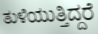
ತುಳಿಯುತ್ತಿದ್ದರೆ